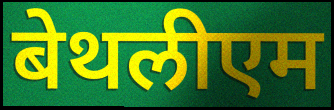
बेथलीएम